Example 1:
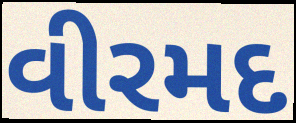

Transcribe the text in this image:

વીરમદ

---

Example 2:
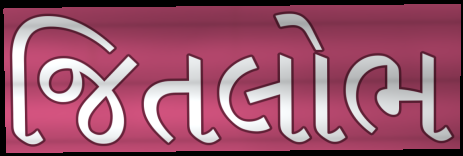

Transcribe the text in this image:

જિતલોભ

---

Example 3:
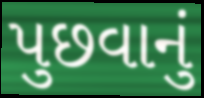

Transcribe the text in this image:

પુછવાનું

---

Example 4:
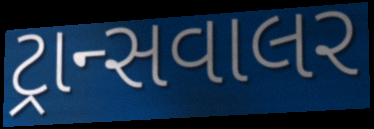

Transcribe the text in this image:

ટ્રાન્સવાલર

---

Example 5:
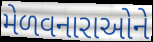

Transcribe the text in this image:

મેળવનારાઓને